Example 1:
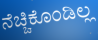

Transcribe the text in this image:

ನೆಚ್ಚಿಕೊಂಡಿಲ್ಲ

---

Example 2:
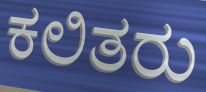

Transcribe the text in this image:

ಕಲಿತರು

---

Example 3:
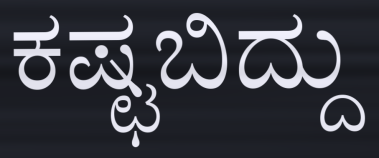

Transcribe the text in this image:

ಕಷ್ಟಬಿದ್ದು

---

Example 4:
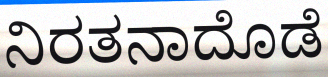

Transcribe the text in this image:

ನಿರತನಾದೊಡೆ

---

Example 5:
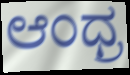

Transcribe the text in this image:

ಆಂಧ್ರ